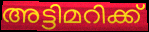
അട്ടിമറിക്ക്